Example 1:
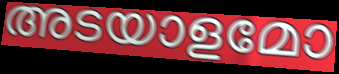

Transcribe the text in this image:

അടയാളമോ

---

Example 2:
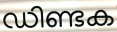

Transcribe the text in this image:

ഡിണ്ടക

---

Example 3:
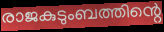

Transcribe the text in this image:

രാജകുടുംബത്തിന്റെ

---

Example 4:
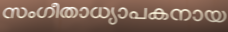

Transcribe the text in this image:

സംഗീതാധ്യാപകനായ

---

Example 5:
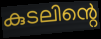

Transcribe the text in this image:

കുടലിന്റെ